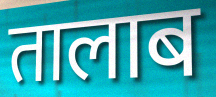
तालाब